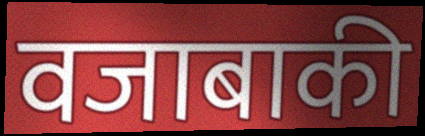
वजाबाकी